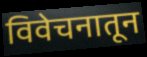
विवेचनातून